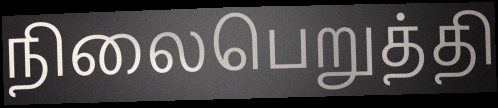
நிலைபெறுத்தி